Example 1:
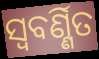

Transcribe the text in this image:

ସ୍ୱବର୍ଣ୍ଣିତ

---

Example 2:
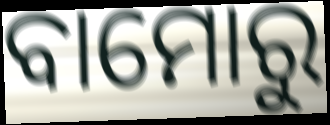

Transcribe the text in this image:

ବାମୋରୁ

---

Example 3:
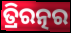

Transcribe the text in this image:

ତ୍ରିରତ୍ନର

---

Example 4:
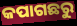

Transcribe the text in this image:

କପାଗଛରୁ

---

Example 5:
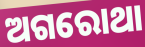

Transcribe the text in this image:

ଅଗରୋଥା